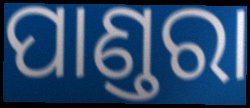
ପାଣ୍ଡରା